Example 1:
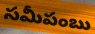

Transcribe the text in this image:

సమీపంబు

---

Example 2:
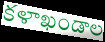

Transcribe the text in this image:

కళాఖండాల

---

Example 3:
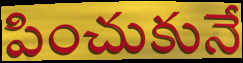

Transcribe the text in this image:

పించుకునే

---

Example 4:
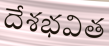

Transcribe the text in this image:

దేశభవిత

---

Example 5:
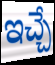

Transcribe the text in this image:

ఇచ్చే